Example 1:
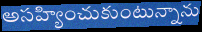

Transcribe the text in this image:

అసహ్యించుకుంటున్నాను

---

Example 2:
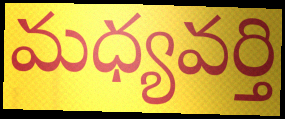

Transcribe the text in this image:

మధ్యవర్తి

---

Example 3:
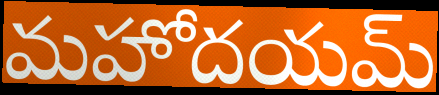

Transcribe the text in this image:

మహోదయమ్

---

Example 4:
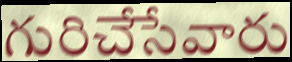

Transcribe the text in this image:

గురిచేసేవారు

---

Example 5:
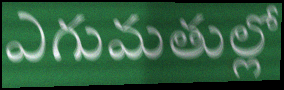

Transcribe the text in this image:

ఎగుమతుల్లో